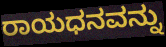
ರಾಯಧನವನ್ನು